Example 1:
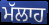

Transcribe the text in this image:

ਮੱਲਾਹ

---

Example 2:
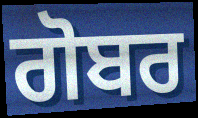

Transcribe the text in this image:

ਗੋਬਰ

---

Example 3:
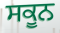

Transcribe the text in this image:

ਸਕੂਨ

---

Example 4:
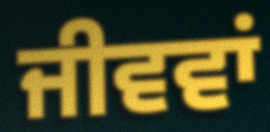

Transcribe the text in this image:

ਜੀਵਵਾਂ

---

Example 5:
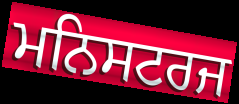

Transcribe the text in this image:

ਮਨਿਸਟਰਜ